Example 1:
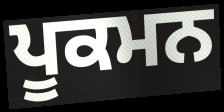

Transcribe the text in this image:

ਪੂਕਮਨ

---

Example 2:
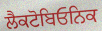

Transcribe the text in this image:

ਲੈਕਟੋਬਿਓਨਿਕ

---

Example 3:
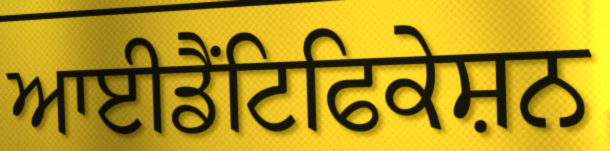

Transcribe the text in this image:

ਆਈਡੈਂਟਿਫਿਕੇਸ਼ਨ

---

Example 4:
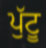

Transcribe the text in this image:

ਪੁੱਟੂ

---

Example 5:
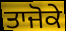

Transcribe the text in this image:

ਤਾਜੋਕੇ